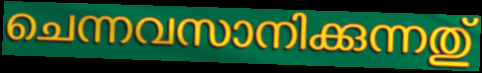
ചെന്നവസാനിക്കുന്നതു്